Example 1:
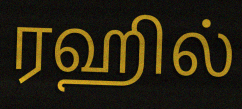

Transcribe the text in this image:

ரஹில்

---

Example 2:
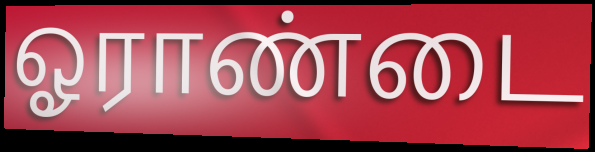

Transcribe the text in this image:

ஓராண்டை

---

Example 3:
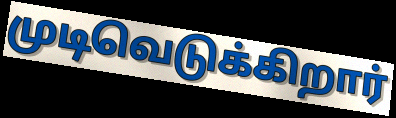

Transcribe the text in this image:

முடிவெடுக்கிறார்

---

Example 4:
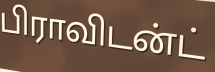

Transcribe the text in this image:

பிராவிடன்ட்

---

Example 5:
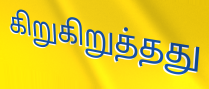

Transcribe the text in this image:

கிறுகிறுத்தது